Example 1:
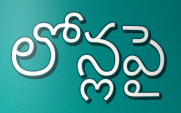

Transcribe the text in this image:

లోన్లపై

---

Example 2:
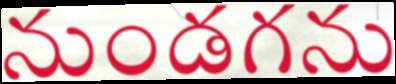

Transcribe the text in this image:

నుండగను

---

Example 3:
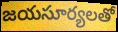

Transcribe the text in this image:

జయసూర్యలతో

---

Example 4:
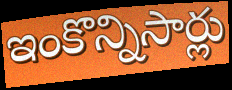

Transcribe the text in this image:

ఇంకొన్నిసార్లు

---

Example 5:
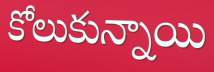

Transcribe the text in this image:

కోలుకున్నాయి